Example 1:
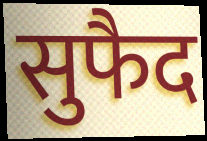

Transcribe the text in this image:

सुफैद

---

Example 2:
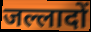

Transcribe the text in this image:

जल्लादों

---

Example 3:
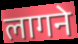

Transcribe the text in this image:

लागने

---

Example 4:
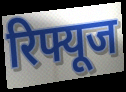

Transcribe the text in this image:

रिफ्यूज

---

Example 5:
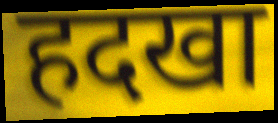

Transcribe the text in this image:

हदखा